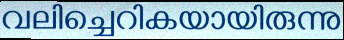
വലിച്ചെറികയായിരുന്നു